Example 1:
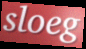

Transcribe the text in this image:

sloeg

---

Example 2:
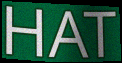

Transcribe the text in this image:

HAT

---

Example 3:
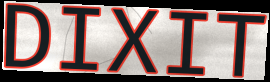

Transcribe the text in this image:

DIXIT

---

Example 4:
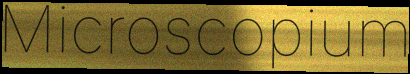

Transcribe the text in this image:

Microscopium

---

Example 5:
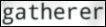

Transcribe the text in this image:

gatherer